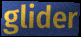
glider